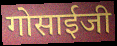
गोसाईजी